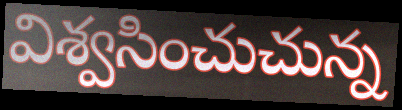
విశ్వసించుచున్న